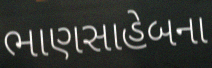
ભાણસાહેબના